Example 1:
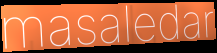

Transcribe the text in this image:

masaledar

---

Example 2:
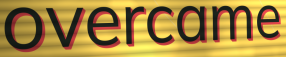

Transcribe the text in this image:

overcame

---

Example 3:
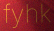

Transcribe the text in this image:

fyhk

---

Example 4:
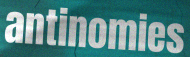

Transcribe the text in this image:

antinomies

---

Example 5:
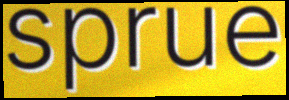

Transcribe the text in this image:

sprue